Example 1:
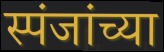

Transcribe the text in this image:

स्पंजांच्या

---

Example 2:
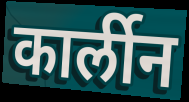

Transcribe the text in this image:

कार्लीन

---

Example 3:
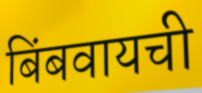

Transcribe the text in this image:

बिंबवायची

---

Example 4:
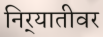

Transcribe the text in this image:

निर्यातीवर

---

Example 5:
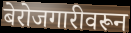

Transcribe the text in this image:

बेरोजगारीवरून